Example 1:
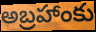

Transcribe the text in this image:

అబ్రహాంకు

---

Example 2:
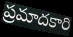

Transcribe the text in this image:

ప్రమాదకారి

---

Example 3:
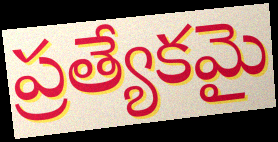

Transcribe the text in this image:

ప్రత్యేకమై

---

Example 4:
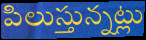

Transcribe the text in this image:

పిలుస్తున్నట్లు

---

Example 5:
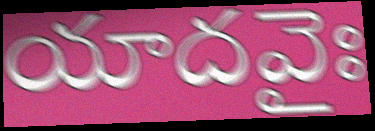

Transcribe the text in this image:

యాదవైః